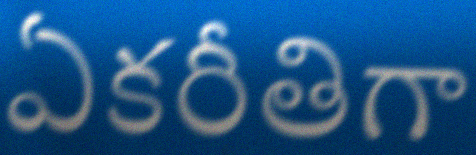
ఏకరీతిగా